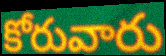
కోరువారు